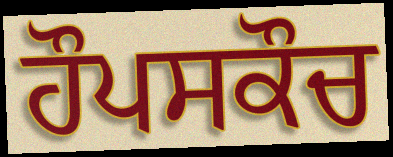
ਹੌਪਸਕੌਚ